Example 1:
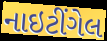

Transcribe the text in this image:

નાઇટીંગેલ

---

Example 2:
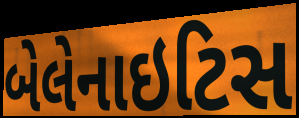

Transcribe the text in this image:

બેલેનાઇટિસ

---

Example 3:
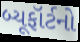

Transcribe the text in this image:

બ્યૂફૉર્ટનો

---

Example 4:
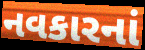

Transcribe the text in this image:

નવકારનાં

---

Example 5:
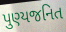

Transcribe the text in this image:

પુણ્યજનિત